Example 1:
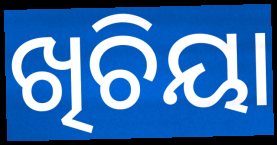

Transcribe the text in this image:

ଖିଚିୟା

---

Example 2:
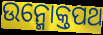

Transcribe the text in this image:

ଉନ୍ମୋକ୍ତପଥ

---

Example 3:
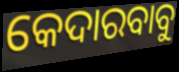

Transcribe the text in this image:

କେଦାରବାବୁ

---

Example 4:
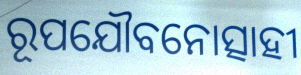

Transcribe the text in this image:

ରୂପଯୌବନୋତ୍ସାହୀ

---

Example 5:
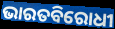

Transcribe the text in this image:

ଭାରତବିରୋଧୀ